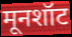
मूनशॉट